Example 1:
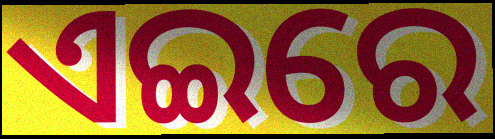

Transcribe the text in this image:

ଏଇରେ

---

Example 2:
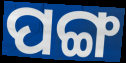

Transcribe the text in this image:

ପଙ୍ଗ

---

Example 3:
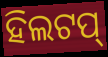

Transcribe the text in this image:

ହିଲଟପ୍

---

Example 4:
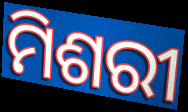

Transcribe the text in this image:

ମିଶରୀ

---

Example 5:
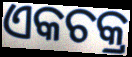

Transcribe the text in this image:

ଏକଚକ୍ର